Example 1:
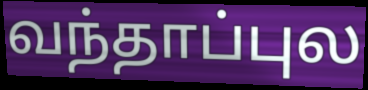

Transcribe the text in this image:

வந்தாப்புல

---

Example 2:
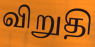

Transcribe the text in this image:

விறுதி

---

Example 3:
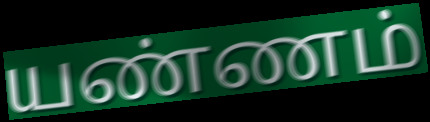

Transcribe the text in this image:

யண்ணம்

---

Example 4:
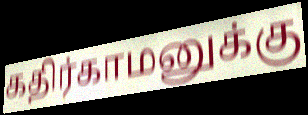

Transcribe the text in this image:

கதிர்காமனுக்கு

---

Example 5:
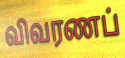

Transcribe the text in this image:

விவரணப்